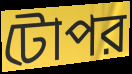
টোপর